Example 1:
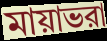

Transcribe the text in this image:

মায়াভরা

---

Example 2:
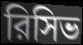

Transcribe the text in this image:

রিসিভ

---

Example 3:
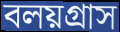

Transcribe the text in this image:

বলয়গ্রাস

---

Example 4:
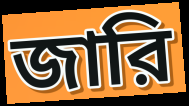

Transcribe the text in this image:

জারি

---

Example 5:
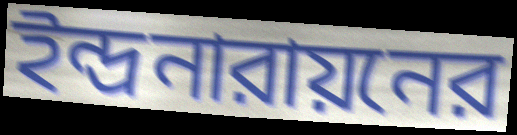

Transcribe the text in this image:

ইন্দ্রনারায়নের